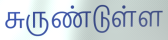
சுருண்டுள்ள